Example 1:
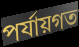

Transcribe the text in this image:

পর্যায়গত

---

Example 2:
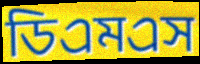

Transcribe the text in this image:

ডিএমএস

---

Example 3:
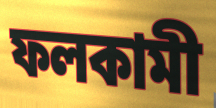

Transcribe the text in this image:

ফলকামী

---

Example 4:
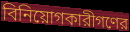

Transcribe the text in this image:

বিনিয়োগকারীগণের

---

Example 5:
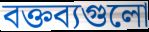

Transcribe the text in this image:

বক্তব্যগুলো